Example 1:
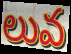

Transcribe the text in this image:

లువ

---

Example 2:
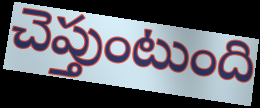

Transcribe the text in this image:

చెప్తుంటుంది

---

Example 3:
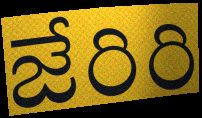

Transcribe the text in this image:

జేరిరి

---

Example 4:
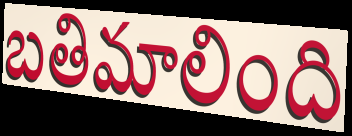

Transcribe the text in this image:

బతిమాలింది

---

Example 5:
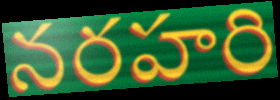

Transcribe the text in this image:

నరహరి